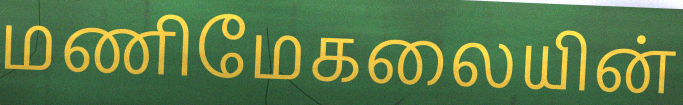
மணிமேகலையின்